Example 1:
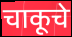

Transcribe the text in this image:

चाकूचे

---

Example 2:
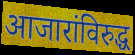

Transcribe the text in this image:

आजारांविरुद्ध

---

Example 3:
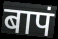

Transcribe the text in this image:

बापं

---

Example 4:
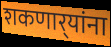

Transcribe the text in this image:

शकणार्‍यांना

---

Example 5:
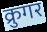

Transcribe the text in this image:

क्रुगर